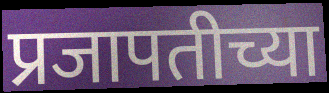
प्रजापतीच्या